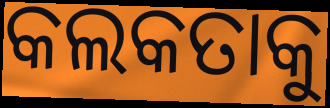
କଲକତାକୁ